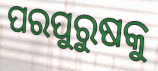
ପରପୁରୁଷକୁ